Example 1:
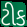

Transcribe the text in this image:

ટીક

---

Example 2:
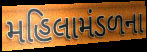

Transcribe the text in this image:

મહિલામંડળના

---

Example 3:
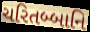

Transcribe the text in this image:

ચરિતબ્બાનિ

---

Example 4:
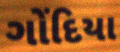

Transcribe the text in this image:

ગોંદિયા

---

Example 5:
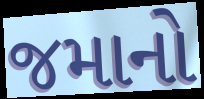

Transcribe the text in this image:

જમાનો